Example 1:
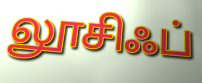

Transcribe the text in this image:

லூசிஃப்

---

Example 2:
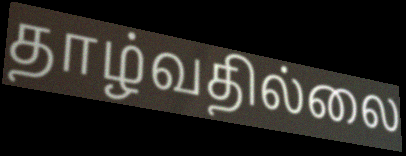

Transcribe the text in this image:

தாழ்வதில்லை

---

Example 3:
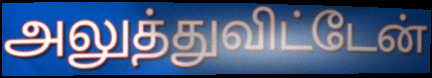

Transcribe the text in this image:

அலுத்துவிட்டேன்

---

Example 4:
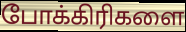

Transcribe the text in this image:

போக்கிரிகளை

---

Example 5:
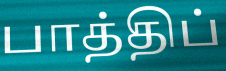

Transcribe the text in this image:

பாத்திப்